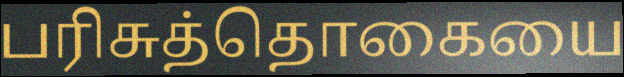
பரிசுத்தொகையை